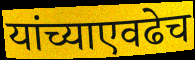
यांच्याएवढेच